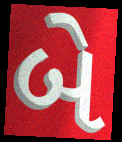
બે